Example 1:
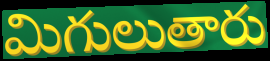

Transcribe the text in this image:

మిగులుతారు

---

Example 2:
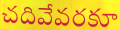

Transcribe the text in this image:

చదివేవరకూ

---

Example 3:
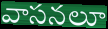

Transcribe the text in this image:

వాసనలూ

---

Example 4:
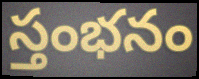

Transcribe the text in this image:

స్తంభనం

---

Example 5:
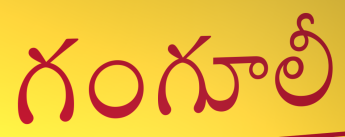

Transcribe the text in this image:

గంగూలీ